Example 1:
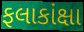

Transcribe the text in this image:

ફલાકાંક્ષા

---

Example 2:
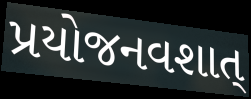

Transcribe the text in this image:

પ્રયોજનવશાત્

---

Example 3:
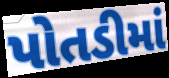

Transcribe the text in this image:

પોતડીમાં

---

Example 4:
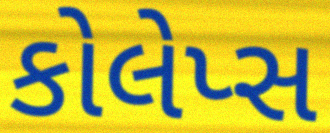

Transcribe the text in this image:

કોલેપ્સ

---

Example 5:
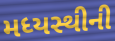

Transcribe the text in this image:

મધ્યસ્થીની